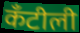
कँटीली